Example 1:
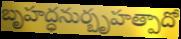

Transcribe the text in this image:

బృహద్ధనుర్బృహత్పాదో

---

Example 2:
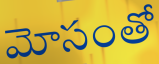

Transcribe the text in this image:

మోసంతో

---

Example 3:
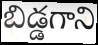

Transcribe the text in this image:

బిడ్డగాని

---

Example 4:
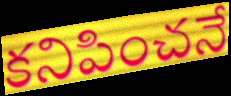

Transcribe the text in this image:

కనిపించనే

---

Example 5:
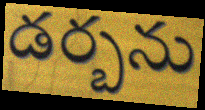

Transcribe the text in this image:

డర్బను